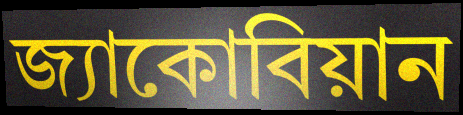
জ্যাকোবিয়ান